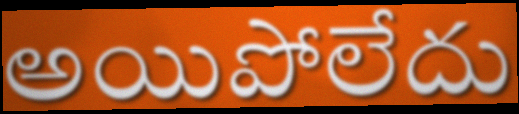
అయిపోలేదు